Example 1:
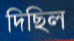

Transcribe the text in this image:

দিছিল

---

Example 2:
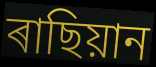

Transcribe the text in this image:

ৰাছিয়ান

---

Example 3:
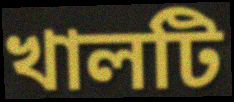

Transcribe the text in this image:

খালটি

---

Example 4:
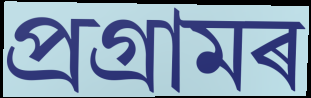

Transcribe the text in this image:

প্ৰগ্ৰামৰ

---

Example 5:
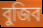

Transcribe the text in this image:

বুজিব